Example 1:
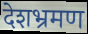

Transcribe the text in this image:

देशभ्रमण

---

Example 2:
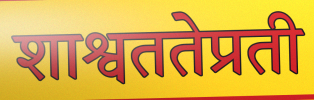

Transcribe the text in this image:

शाश्वततेप्रती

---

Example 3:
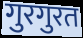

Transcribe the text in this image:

गुरगुरत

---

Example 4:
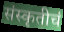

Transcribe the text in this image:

संस्कृतीचं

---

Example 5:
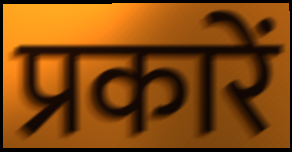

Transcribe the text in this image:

प्रकारें